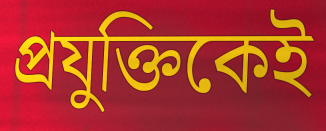
প্রযুক্তিকেই